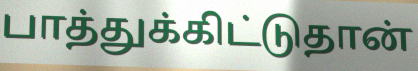
பாத்துக்கிட்டுதான்